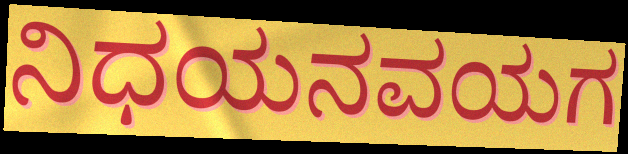
ನಿಧಯನವಯಗ